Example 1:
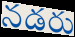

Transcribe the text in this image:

నడరు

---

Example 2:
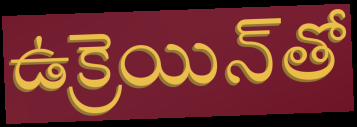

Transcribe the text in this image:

ఉక్రెయిన్‌తో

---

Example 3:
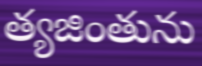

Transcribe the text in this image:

త్యజింతును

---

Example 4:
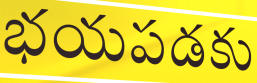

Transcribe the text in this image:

భయపడకు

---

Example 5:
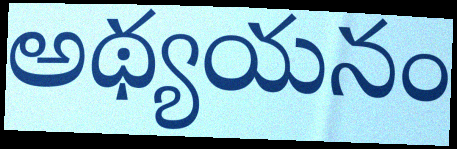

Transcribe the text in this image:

అథ్యయనం